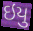
ઇયુ